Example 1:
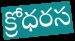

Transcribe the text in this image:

క్రోధరస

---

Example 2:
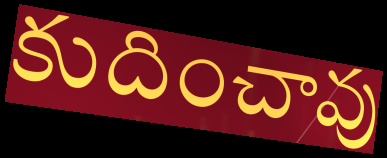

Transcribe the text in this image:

కుదించావు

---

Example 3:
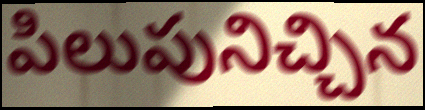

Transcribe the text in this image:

పిలుపునిచ్చిన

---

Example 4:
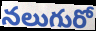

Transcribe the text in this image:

నలుగురో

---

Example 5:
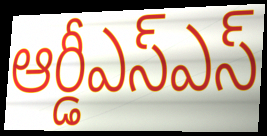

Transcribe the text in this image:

ఆర్డీఎస్ఎస్